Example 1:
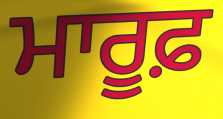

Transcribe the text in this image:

ਮਾਰੂਫ਼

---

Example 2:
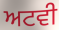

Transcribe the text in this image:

ਅਟਵੀ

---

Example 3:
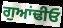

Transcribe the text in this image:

ਗੁਆਂਢੀਓ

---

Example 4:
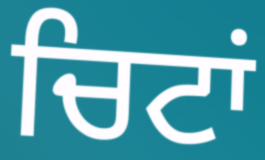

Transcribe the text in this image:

ਚਿਟਾਂ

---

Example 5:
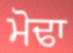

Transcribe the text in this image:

ਮੋਢਾ